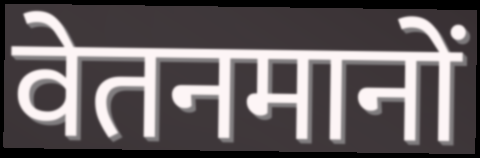
वेतनमानों